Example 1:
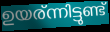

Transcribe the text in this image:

ഉയര്ന്നിട്ടുണ്ട്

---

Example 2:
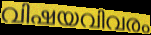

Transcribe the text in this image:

വിഷയവിവരം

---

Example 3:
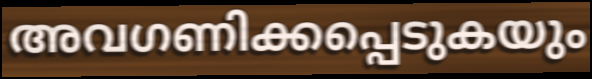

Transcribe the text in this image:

അവഗണിക്കപ്പെടുകയും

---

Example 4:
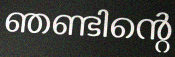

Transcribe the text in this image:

ഞണ്ടിന്റെ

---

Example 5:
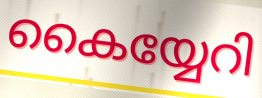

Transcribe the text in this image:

കൈയ്യേറി